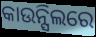
କାଉନ୍ସିଲରେ